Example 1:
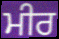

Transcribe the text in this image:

ਮੀਰ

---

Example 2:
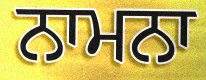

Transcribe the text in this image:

ਨਾਮਨਾ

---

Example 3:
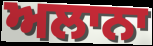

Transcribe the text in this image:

ਅਲਾਨਾ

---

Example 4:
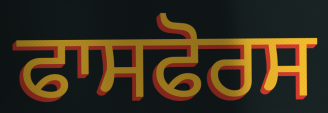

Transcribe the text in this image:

ਫਾਸਫੋਰਸ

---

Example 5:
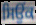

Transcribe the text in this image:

ਸਿਉਂਕ